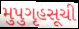
મુપુગૃહસૂચી